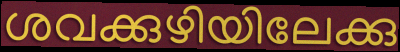
ശവക്കുഴിയിലേക്കു